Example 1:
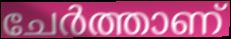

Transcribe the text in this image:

ചേർത്താണ്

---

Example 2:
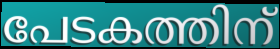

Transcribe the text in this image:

പേടകത്തിന്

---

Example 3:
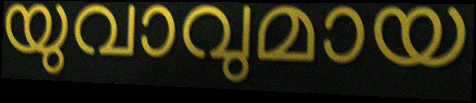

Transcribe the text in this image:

യുവാവുമായ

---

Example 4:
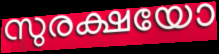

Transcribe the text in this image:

സുരക്ഷയോ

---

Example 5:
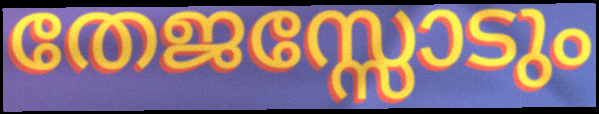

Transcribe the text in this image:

തേജസ്സോടും